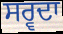
ਸਰ੍ਵਦਾ